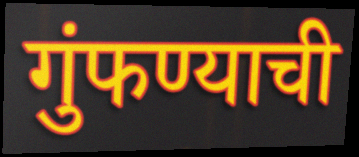
गुंफण्याची